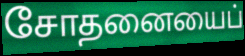
சோதனையைப்